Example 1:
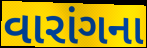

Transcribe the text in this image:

વારાંગના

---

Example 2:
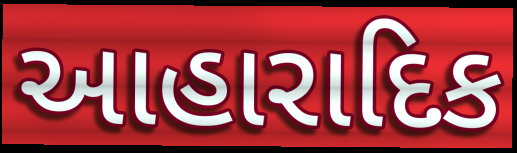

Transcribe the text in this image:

આહારાદિક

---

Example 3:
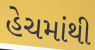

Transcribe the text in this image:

હેચમાંથી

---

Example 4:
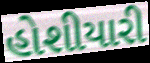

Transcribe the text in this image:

હોશીયારી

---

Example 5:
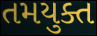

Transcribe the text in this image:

તમયુક્ત